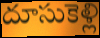
దూసుకెళ్లి